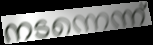
നടന്നെന്ന്